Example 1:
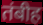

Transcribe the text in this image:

तंबीह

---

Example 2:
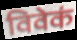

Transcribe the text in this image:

विवेकं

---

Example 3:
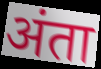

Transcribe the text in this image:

अंता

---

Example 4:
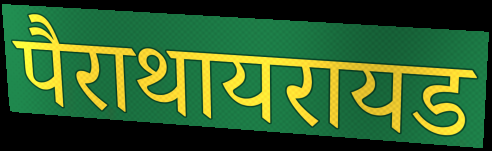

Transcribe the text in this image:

पैराथायरायड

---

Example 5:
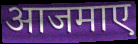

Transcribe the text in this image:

आजमाए